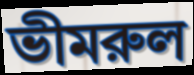
ভীমরুল